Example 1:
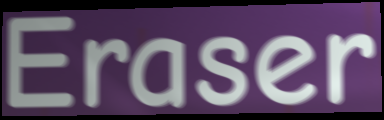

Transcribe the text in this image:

Eraser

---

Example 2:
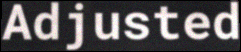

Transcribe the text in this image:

Adjusted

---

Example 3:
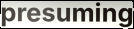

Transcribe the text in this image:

presuming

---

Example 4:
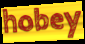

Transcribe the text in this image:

hobey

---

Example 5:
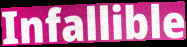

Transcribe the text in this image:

Infallible